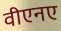
वीएनए